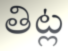
తిట్ల